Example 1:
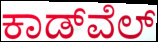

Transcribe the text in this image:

ಕಾಡ್‌ವೆಲ್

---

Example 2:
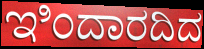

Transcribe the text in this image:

ಇಿಂದಾರದಿದ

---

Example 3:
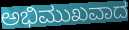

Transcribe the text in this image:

ಅಭಿಮುಖವಾದ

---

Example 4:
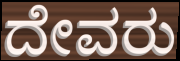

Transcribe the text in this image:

ದೇವರು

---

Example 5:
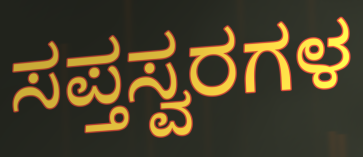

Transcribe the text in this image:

ಸಪ್ತಸ್ವರಗಳ